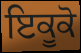
ਇਕੂਕੋ